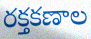
రక్తకణాల